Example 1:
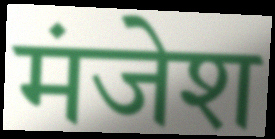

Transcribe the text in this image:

मंजेश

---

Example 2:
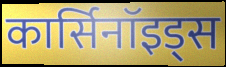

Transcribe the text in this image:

कार्सिनॉइड्स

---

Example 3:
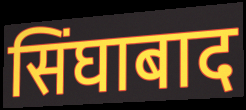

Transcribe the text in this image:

सिंघाबाद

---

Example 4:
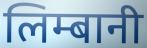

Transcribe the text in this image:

लिम्बानी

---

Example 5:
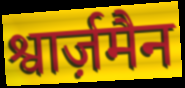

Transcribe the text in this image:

श्वार्ज़मैन